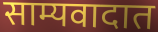
साम्यवादात